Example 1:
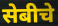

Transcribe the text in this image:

सेबीचे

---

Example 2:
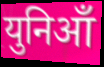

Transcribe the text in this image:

युनिआँ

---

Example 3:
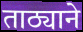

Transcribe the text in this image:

ताठ्याने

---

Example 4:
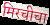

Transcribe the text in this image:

मिरचीचा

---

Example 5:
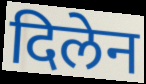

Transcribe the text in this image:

दिलेन